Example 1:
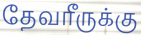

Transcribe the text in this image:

தேவரீருக்கு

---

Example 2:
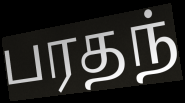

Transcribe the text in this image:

பரதந்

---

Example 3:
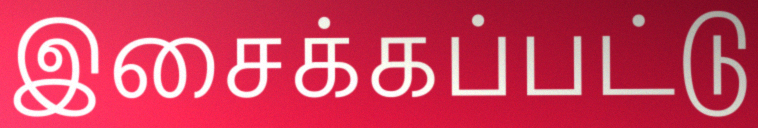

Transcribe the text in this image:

இசைக்கப்பட்டு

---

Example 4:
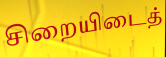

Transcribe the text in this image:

சிறையிடைத்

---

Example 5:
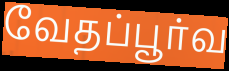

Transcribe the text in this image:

வேதப்பூர்வ